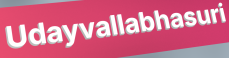
Udayvallabhasuri